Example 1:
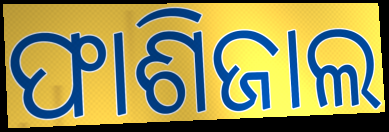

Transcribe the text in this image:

ଫାଶିଜାଲ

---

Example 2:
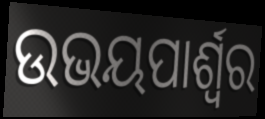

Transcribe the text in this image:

ଉଭୟପାର୍ଶ୍ୱର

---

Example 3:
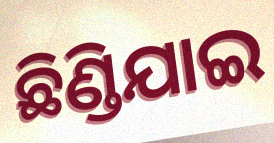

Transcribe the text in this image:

ଛିଣ୍ଡିଯାଇ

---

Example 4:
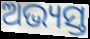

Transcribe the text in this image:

ଅଭ୍ୟସ୍ତ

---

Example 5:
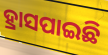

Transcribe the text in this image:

ହ୍ରାସପାଇଛି